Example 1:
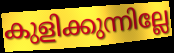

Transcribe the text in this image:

കുളിക്കുന്നില്ലേ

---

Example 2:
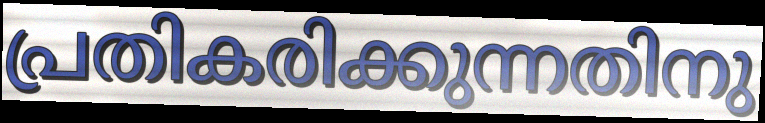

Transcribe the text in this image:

പ്രതികരിക്കുന്നതിനു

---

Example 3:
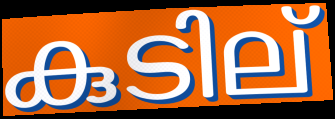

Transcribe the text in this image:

കുടില്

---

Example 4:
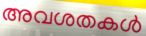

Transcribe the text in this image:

അവശതകൾ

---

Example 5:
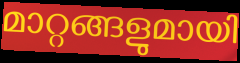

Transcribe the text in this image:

മാറ്റങ്ങളുമായി